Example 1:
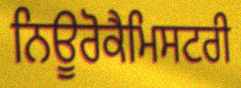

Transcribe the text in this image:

ਨਿਊਰੋਕੈਮਿਸਟਰੀ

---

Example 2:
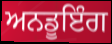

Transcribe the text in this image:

ਅਨਡੂਇੰਗ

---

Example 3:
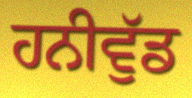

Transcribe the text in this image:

ਹਨੀਵੁੱਡ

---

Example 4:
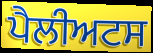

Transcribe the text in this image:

ਪੈਲੀਅਟਸ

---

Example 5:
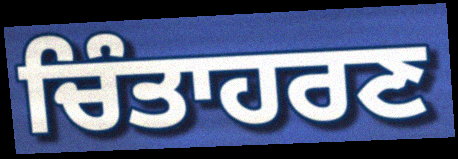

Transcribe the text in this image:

ਚਿੰਤਾਹਰਣ